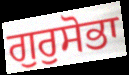
ਗੁਰੁਸੋਭਾ